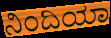
ನಿಂದಿಯಾ